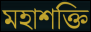
মহাশক্তি